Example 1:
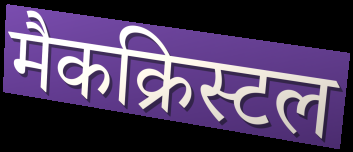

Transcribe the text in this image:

मैकक्रिस्टल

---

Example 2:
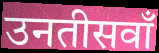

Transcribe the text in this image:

उनतीसवाँ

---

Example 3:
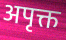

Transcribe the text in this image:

अपृक्त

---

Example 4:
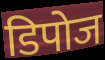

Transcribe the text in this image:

डिपोज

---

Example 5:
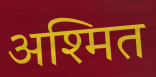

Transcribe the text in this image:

अश्मित